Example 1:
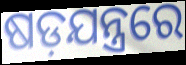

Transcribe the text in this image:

ଷଡ଼ଯନ୍ତ୍ରରେ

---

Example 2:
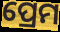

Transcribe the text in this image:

ପ୍ରେମ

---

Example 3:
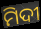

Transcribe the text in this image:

ମିଦୀ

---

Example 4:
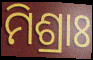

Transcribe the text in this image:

ମିଶ୍ରାଃ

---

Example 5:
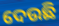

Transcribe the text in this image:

ଦେଉଛି